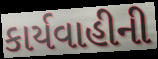
કાર્યવાહીની